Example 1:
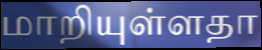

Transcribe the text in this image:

மாறியுள்ளதா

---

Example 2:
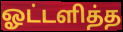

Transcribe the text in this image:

ஓட்டளித்த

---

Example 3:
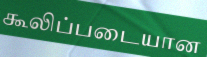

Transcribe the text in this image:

கூலிப்படையான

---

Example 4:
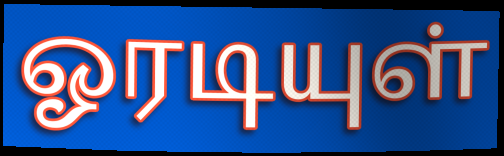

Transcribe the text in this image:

ஓரடியுள்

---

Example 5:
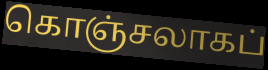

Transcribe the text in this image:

கொஞ்சலாகப்